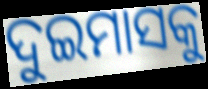
ଦୁଇମାସକୁ